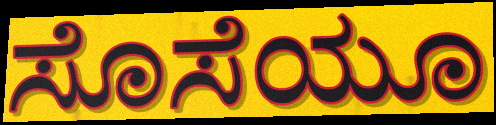
ಸೊಸೆಯೂ